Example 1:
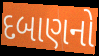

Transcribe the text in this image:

દબાણનો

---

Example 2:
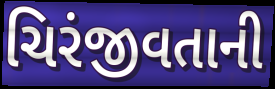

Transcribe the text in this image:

ચિરંજીવતાની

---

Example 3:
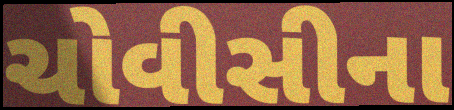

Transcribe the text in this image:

ચોવીસીના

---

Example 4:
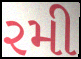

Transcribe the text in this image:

રમી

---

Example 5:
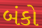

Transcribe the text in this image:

બંકો